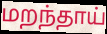
மறந்தாய்